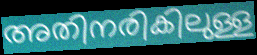
അതിനരികിലുള്ള